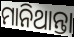
ମାନିଥାନ୍ତା